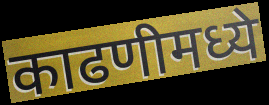
काढणीमध्ये